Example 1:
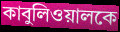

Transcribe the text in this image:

কাবুলিওয়ালকে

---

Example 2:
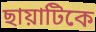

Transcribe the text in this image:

ছায়াটিকে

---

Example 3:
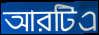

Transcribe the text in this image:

আরটিএ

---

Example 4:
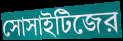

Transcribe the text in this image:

সোসাইটিজের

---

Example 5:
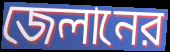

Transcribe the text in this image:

জেলানের